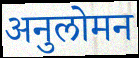
अनुलोमन